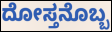
ದೋಸ್ತನೊಬ್ಬ